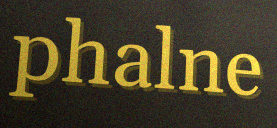
phalne